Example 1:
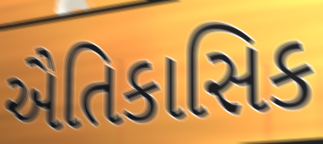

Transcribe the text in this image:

ઐતિકાસિક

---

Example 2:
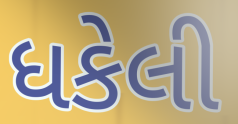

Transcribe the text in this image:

ધકેલી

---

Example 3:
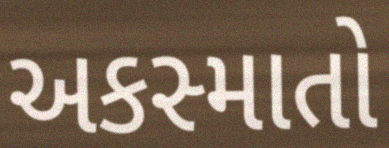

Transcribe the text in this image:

અકસ્માતો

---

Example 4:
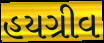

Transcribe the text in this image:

હયગ્રીવ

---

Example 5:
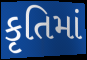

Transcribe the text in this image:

કૃતિમાં